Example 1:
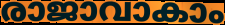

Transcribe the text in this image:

രാജാവാകാം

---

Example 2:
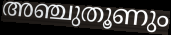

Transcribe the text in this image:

അഞ്ചുതൂണും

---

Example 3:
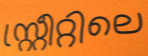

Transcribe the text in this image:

സ്റ്റ്രീറ്റിലെ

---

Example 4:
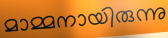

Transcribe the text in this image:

മാമ്മനായിരുന്നു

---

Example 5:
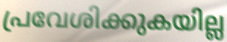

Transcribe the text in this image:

പ്രവേശിക്കുകയില്ല